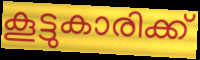
കൂട്ടുകാരിക്ക്